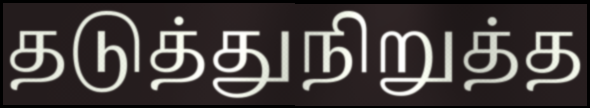
தடுத்துநிறுத்த